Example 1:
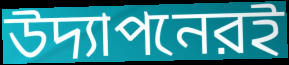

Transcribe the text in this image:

উদ্যাপনেরই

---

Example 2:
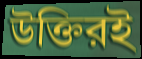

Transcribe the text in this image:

উক্তিরই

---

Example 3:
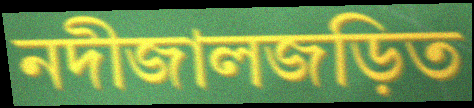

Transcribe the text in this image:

নদীজালজড়িত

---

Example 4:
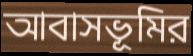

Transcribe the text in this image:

আবাসভূমির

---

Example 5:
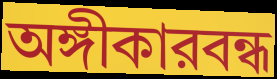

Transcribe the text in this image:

অঙ্গীকারবন্ধ